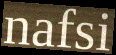
nafsi